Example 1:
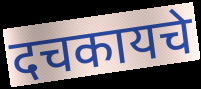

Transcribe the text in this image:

दचकायचे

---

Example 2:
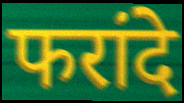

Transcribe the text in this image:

फरांदे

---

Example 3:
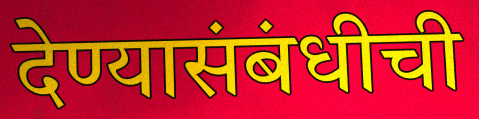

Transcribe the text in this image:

देण्यासंबंधीची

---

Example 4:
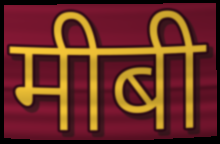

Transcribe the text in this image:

मीबी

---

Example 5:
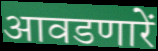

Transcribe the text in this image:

आवडणारें